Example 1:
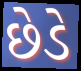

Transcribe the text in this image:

છેડે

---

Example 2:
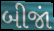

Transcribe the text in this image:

બીજાં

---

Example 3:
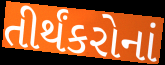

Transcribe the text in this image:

તીર્થંકરોનાં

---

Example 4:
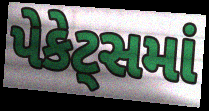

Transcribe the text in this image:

પેકેટ્સમાં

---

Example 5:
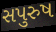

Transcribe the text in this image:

સપુરુષ